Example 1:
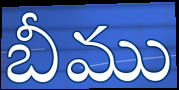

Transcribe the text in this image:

బీము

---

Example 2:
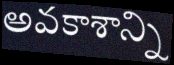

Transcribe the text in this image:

అవకాశాన్ని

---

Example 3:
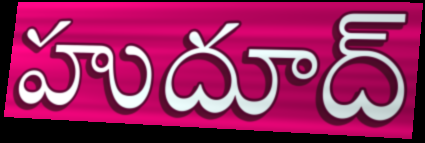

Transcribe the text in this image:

హుదూద్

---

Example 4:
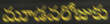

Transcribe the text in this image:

మూడవరోజుకు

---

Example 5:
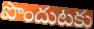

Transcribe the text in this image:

పొందుటకు